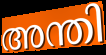
അന്തി